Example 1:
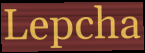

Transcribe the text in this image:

Lepcha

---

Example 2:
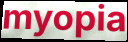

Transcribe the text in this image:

myopia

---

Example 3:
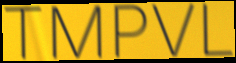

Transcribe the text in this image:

TMPVL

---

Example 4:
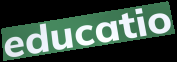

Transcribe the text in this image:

educatio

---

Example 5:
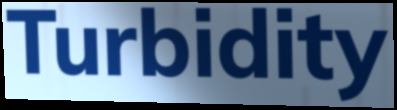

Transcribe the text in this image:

Turbidity